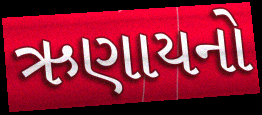
ઋણાયનો